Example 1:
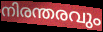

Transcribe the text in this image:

നിരന്തരവും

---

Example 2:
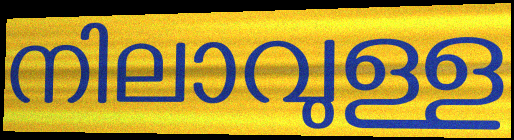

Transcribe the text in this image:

നിലാവുള്ള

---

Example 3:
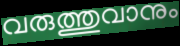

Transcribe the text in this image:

വരുത്തുവാനും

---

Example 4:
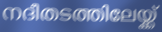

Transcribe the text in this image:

നദീതടത്തിലേയ്ക്ക്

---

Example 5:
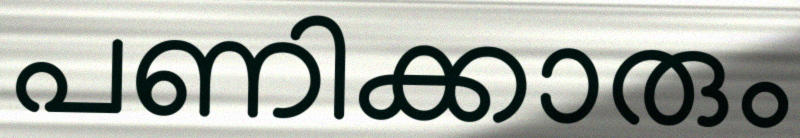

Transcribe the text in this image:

പണിക്കാരും